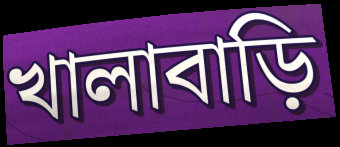
খালাবাড়ি